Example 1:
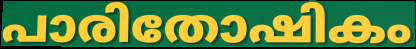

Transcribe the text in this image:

പാരിതോഷികം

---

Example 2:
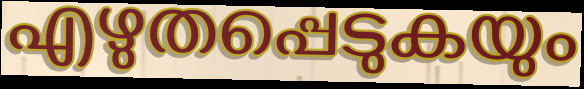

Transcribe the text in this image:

എഴുതപ്പെടുകയും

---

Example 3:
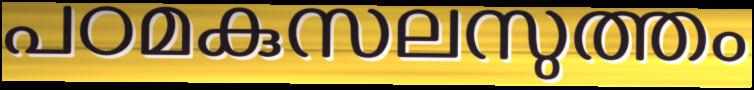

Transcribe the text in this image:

പഠമകുസലസുത്തം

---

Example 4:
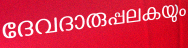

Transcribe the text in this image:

ദേവദാരുപ്പലകയും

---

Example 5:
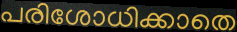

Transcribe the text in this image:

പരിശോധിക്കാതെ